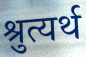
श्रुत्यर्थ